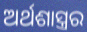
ଅର୍ଥଶାସ୍ତ୍ରର